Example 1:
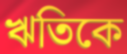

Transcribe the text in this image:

ঋতিকে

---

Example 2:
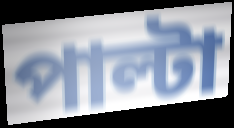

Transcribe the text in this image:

পাল্টা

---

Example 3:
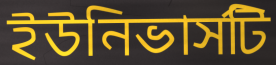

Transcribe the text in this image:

ইউনিভার্সটি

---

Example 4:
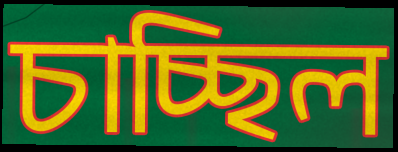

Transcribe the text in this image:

চাচ্ছিল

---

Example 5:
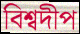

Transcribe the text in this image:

বিশ্বদীপ